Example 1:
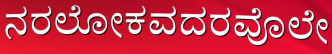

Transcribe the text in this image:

ನರಲೋಕವದರವೊಲೇ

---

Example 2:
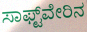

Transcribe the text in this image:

ಸಾಫ್ಟ್‌ವೇರಿನ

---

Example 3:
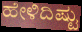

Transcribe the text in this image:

ಹೇಳಿದಿಷ್ಟು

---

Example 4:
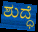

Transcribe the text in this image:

ಶುದ್ಧೆ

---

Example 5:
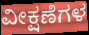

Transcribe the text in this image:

ವೀಕ್ಷಣೆಗಳ